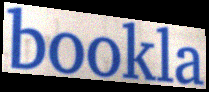
bookla